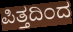
ಪಿತ್ತದಿಂದ